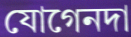
যোগেনদা